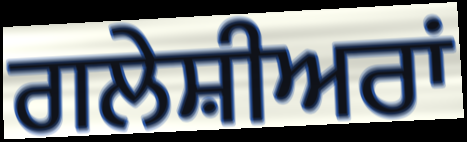
ਗਲੇਸ਼ੀਅਰਾਂ